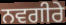
ਨਵਗੀਰੇ